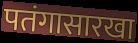
पतंगासारखा